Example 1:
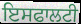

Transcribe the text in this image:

ਇਸਫਾਲਟੀ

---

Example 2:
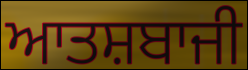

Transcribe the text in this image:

ਆਤਸ਼ਬਾਜੀ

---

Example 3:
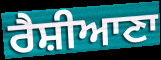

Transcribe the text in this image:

ਰੈਸ਼ੀਆਣਾ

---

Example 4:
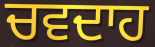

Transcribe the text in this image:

ਚਵਦਾਹ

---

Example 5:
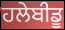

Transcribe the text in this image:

ਹਲੇਬੀਡੂ